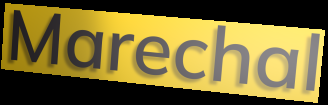
Marechal